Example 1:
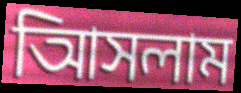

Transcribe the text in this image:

আিসলাম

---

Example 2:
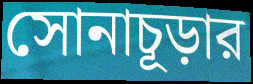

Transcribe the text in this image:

সোনাচূড়ার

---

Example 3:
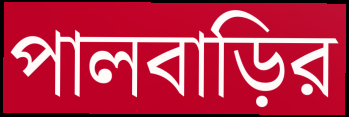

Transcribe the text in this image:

পালবাড়ির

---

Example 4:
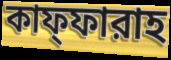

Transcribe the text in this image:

কাফ্ফারাহ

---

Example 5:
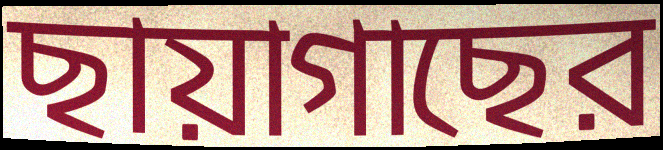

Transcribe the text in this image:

ছায়াগাছের